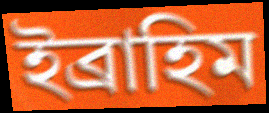
ইব্ৰাহিম